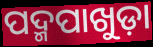
ପଦ୍ମପାଖୁଡ଼ା